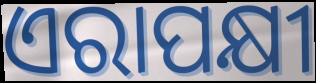
ଏରାପକ୍ଷୀ